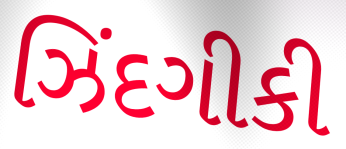
ઝિંદગીકી